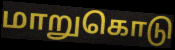
மாறுகொடு